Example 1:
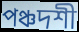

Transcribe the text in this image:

পঞ্চদশী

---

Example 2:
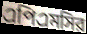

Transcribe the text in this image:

এপিএমসির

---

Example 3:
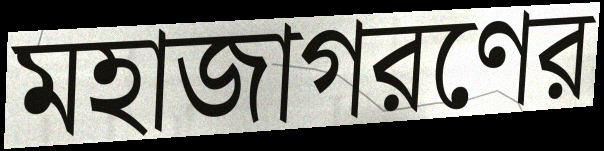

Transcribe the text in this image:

মহাজাগরণের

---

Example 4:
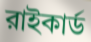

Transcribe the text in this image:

রাইকার্ড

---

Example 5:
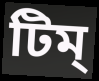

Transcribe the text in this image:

টিম্